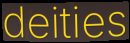
deities